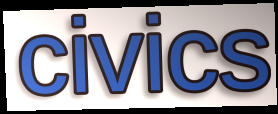
civics